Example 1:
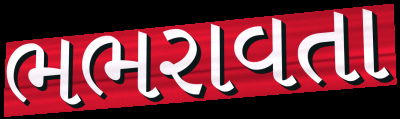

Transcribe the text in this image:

ભભરાવતા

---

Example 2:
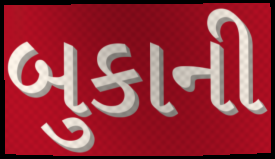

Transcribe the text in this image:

બુકાની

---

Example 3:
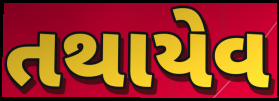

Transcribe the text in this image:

તથાયેવ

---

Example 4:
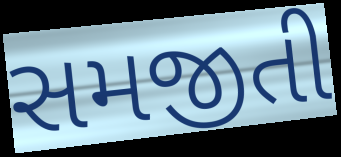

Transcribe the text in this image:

સમજીતી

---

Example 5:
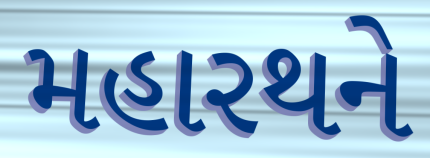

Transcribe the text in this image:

મહારથને